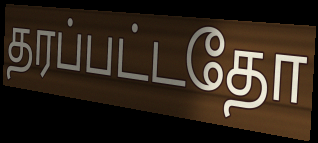
தரப்பட்டதோ